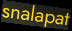
snalapat